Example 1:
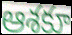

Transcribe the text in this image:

ఆశకూ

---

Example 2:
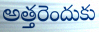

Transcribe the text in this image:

అత్తరెందుకు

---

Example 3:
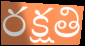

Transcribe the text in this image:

రక్షతి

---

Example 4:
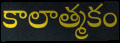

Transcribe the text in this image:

కాలాత్మకం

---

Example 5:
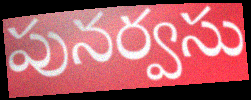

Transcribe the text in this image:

పునర్వసు